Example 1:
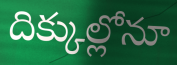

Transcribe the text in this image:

దిక్కుల్లోనూ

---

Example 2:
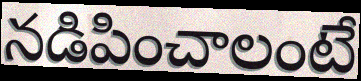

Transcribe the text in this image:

నడిపించాలంటే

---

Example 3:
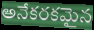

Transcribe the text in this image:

అనేకరకమైన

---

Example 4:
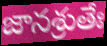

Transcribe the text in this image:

జానశ్రుతేః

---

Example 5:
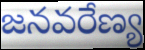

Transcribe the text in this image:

జనవరేణ్య